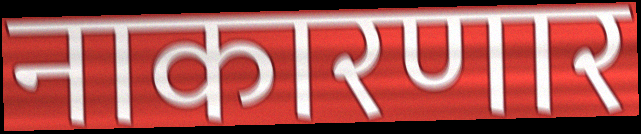
नाकारणार